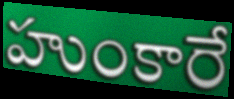
హుంకారే